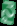
నై